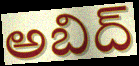
అబిద్